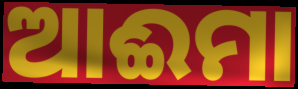
ଆଈମା